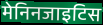
मेनिनजाइटिस